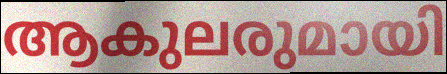
ആകുലരുമായി